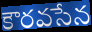
కౌరవసేన